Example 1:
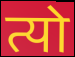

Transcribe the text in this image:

त्यो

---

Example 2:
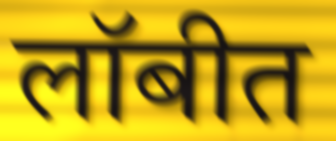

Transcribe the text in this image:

लॉबीत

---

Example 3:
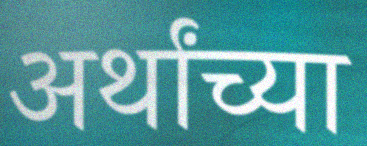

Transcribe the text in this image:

अर्थांच्या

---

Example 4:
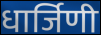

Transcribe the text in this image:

धार्जिणी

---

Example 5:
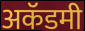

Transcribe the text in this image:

अकॅडमी